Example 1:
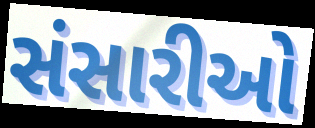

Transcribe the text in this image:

સંસારીઓ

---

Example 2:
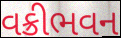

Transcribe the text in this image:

વક્રીભવન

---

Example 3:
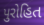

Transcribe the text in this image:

પુરોહિત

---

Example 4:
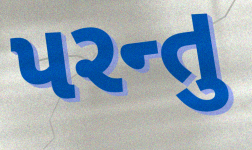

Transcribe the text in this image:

પરન્તુ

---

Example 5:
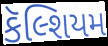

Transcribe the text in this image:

કૅલ્શિયમ